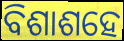
ବିଶାଶହେ